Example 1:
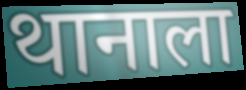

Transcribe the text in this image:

थानाला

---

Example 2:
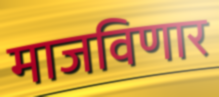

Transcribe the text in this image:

माजविणार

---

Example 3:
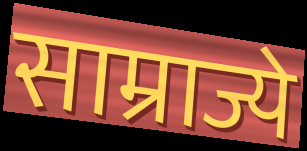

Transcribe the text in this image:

साम्राज्ये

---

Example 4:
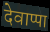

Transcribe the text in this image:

देवाप्पा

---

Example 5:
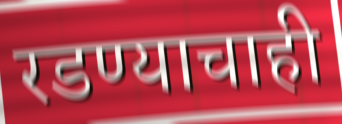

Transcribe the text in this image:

रडण्याचाही